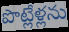
పొట్లేళ్లను